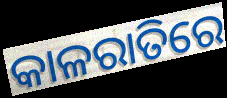
କାଳରାତିରେ